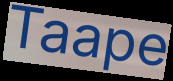
Taape